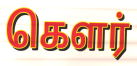
கௌர்